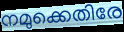
നമുക്കെതിരേ